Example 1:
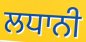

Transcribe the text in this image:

ਲਧਾਨੀ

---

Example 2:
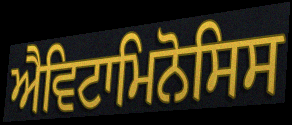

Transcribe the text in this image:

ਐਵਿਟਾਮਿਨੋਸਿਸ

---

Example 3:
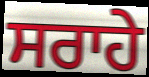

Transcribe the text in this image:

ਸਰਾਹੇ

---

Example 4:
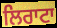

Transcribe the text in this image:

ਲਿਰਾਟਾ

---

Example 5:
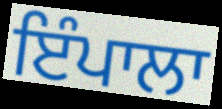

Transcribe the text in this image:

ਇੰਪਾਲਾ